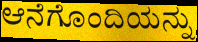
ಆನೆಗೊಂದಿಯನ್ನು